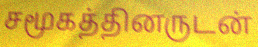
சமூகத்தினருடன்